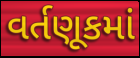
વર્તણૂકમાં